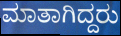
ಮಾತಾಗಿದ್ದರು